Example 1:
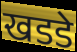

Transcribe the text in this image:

खडडे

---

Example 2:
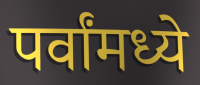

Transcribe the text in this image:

पर्वांमध्ये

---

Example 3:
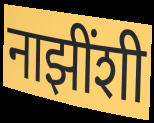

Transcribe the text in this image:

नाझींशी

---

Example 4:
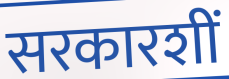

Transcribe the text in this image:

सरकारशीं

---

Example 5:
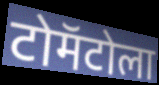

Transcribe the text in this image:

टोमॅटोला